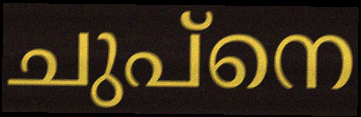
ചുപ്നെ